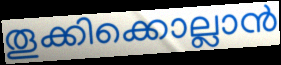
തൂക്കിക്കൊല്ലാൻ